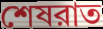
শেষরাত